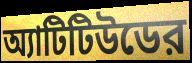
অ্যাটিটিউডের